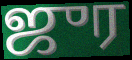
ஜுர